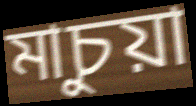
মাচুয়া